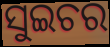
ସୁଇଚର